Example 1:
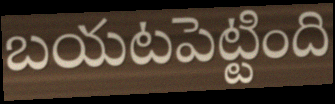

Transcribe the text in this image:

బయటపెట్టింది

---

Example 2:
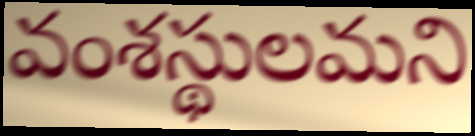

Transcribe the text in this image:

వంశస్థులమని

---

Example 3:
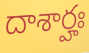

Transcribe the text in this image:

దాశార్హః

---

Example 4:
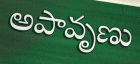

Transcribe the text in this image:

అపావృణు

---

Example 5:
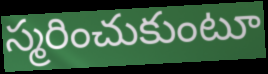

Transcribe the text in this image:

స్మరించుకుంటూ